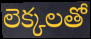
లెక్కలతో